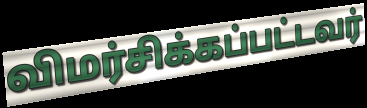
விமர்சிக்கப்பட்டவர்